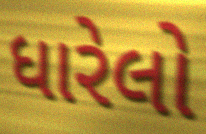
ધારેલો